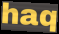
haq